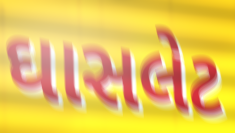
ઘાસલેટ